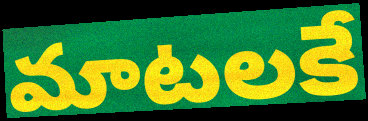
మాటలకే